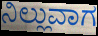
ನಿಲ್ಲುವಾಗ